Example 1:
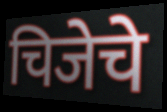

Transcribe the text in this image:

चिजेचे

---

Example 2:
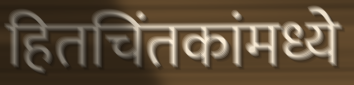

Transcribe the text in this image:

हितचिंतकांमध्ये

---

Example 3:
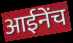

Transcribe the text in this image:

आईनेंच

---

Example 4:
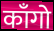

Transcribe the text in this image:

काँगो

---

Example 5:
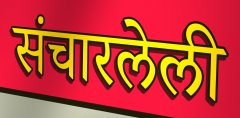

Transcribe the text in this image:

संचारलेली